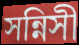
সন্নিসী